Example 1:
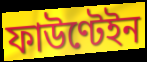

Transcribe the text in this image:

ফাউণ্টেইন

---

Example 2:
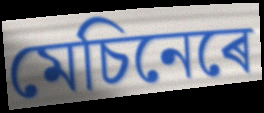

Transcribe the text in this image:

মেচিনেৰে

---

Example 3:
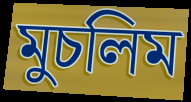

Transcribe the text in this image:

মুচলিম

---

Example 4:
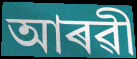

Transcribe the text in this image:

আৰৱী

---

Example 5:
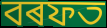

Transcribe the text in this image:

বৰফত